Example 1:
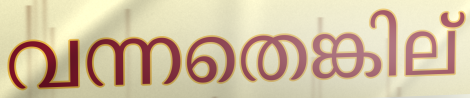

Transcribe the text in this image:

വന്നതെങ്കില്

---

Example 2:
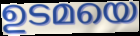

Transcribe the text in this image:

ഉടമയെ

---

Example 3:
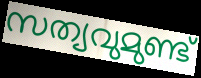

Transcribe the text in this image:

സത്യവുമുണ്ട്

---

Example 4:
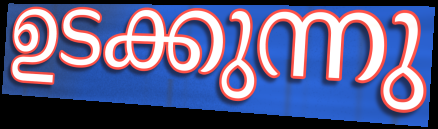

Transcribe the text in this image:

ഉടക്കുന്നു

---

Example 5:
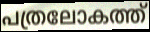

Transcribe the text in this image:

പത്രലോകത്ത്